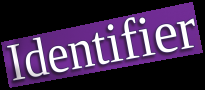
Identifier